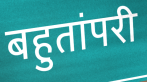
बहुतांपरी